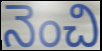
నెంచి